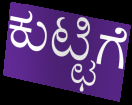
ಕುಟ್ಟಿಗೆ